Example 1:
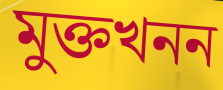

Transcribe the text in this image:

মুক্তখনন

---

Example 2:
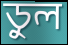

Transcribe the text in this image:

ডুল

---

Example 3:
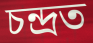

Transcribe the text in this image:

চন্দ্ৰত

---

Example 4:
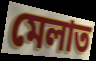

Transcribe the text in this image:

মেলাত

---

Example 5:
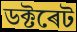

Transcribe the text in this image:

ডক্টৰেট